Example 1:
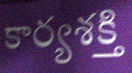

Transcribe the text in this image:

కార్యశక్తి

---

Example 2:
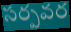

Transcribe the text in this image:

సర్పవర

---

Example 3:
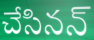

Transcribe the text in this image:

చేసినన్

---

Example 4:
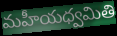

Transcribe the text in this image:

మహీయధ్వమితి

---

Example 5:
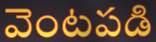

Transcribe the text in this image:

వెంటపడి